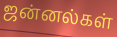
ஜன்னல்கள்